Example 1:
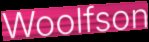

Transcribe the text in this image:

Woolfson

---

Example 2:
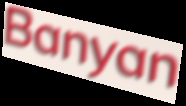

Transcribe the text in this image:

Banyan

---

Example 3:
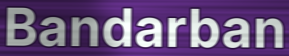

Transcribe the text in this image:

Bandarban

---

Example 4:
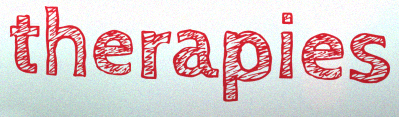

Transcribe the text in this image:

therapies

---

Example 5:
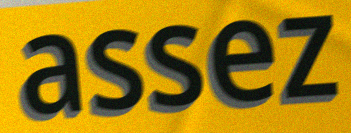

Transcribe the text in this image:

assez